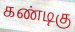
கண்டிகு